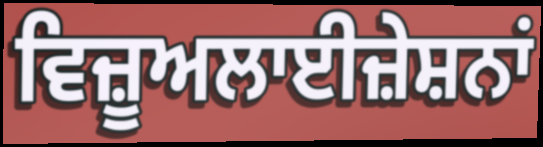
ਵਿਜ਼ੂਅਲਾਈਜ਼ੇਸ਼ਨਾਂ